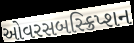
ઓવરસબસ્ક્રિપ્શન